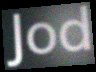
Jod